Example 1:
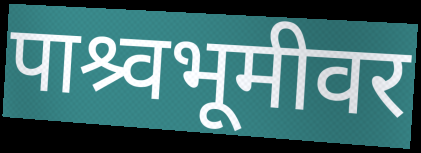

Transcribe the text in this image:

पाश्र्वभूमीवर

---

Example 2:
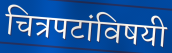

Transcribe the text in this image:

चित्रपटांविषयी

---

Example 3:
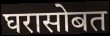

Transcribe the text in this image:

घरासोबत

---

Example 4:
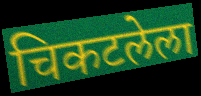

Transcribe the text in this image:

चिकटलेला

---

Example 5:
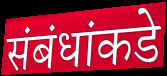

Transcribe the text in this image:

संबंधांकडे